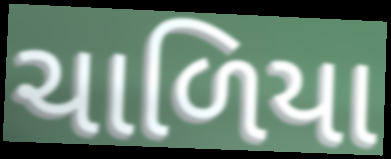
ચાળિયા